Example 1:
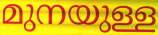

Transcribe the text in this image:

മുനയുള്ള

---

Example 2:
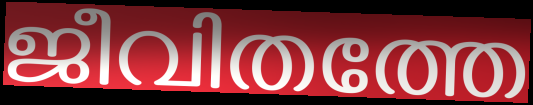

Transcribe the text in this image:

ജീവിതത്തേ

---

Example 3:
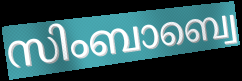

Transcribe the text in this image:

സിംബാബ്വെ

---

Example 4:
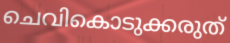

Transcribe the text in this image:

ചെവികൊടുക്കരുത്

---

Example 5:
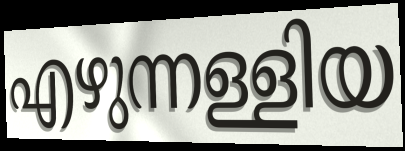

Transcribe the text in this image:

എഴുന്നള്ളിയ